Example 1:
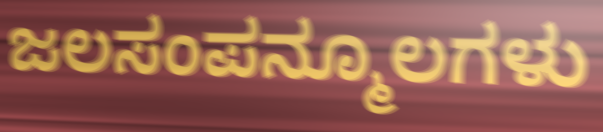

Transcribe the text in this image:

ಜಲಸಂಪನ್ಮೂಲಗಳು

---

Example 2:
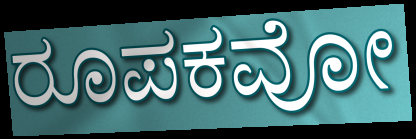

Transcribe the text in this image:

ರೂಪಕವೋ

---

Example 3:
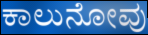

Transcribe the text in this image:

ಕಾಲುನೋವು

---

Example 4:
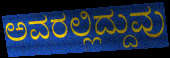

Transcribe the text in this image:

ಅವರಲ್ಲಿದ್ದುವು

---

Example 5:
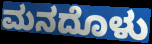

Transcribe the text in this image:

ಮನದೊಳು